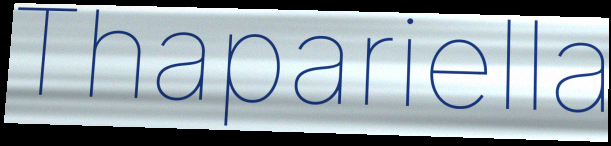
Thapariella